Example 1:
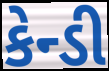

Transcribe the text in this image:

કેન્ડી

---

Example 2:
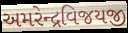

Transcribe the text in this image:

અમરેન્દ્રવિજયજી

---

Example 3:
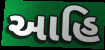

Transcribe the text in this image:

આહિ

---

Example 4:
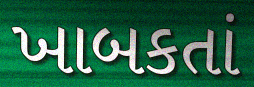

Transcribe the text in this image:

ખાબકતાં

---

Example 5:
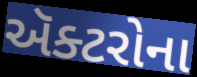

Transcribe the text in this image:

ઍક્ટરોના